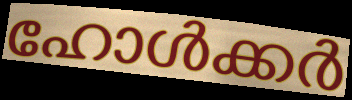
ഹോൾക്കർ